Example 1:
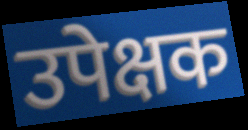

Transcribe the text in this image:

उपेक्षक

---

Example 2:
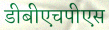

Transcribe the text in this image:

डीबीएचपीएस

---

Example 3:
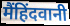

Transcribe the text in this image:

मैंहिंदवानी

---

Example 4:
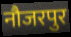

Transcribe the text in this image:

नौजरपुर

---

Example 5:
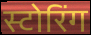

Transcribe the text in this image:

स्टोरिंग